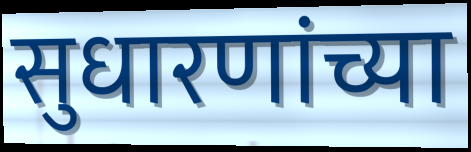
सुधारणांच्या